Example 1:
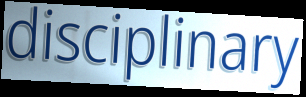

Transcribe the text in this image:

disciplinary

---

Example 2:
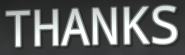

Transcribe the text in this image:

THANKS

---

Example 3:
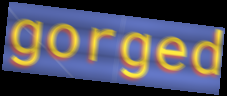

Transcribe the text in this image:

gorged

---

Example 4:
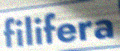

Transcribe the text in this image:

filifera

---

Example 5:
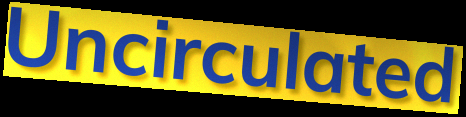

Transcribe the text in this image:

Uncirculated